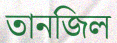
তানজিল